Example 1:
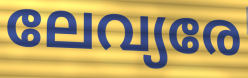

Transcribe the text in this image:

ലേവ്യരേ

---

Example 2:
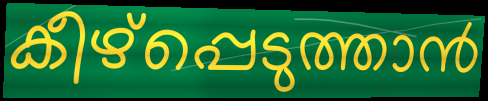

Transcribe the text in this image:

കീഴ്പ്പെടുത്താൻ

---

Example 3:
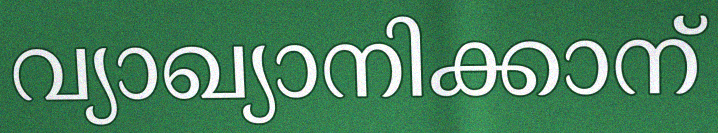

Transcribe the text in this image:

വ്യാഖ്യാനിക്കാന്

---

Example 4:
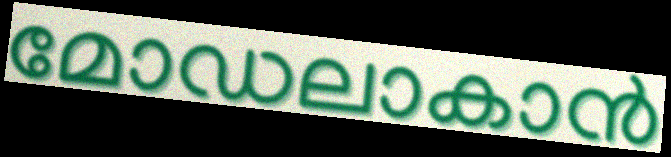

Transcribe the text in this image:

മോഡലാകാൻ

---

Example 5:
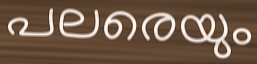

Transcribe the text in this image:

പലരെയും